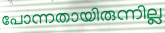
പോന്നതായിരുന്നില്ല